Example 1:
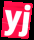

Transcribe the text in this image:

yj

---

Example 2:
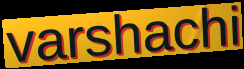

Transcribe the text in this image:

varshachi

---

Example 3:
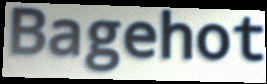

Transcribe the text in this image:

Bagehot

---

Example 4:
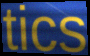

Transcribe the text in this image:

tics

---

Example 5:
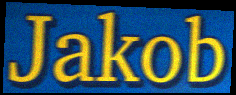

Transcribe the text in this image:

Jakob